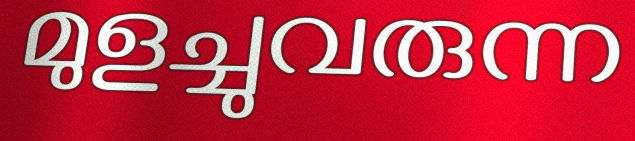
മുളച്ചുവരുന്ന